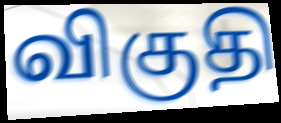
விகுதி